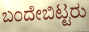
ಬಂದೇಬಿಟ್ಟರು